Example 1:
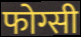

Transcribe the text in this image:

फोग्सी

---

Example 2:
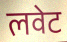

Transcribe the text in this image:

लवेट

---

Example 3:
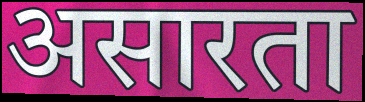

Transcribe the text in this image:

असारता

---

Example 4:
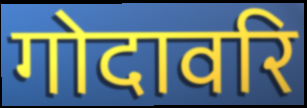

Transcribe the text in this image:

गोदावरि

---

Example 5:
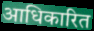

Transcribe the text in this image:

आधिकारित